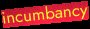
incumbancy